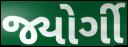
જ્યોર્ગી